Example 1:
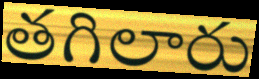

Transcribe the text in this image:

తగిలారు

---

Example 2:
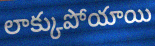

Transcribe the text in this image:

లాక్కుపోయాయి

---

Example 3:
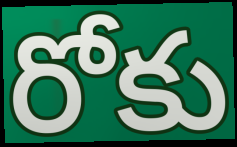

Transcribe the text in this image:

రోకు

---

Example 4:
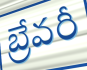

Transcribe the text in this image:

బ్రేవరీ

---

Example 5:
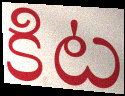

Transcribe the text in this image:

కిట